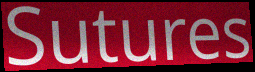
Sutures